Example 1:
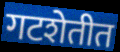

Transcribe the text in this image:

गटशेतीत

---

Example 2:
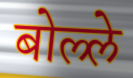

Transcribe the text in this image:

बोल्ले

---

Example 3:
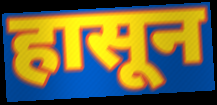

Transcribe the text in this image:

हासून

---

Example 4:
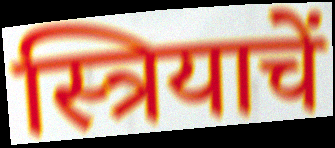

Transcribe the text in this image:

स्त्रियाचें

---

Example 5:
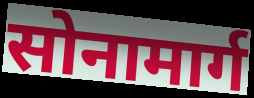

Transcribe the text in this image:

सोनामार्ग